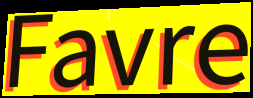
Favre